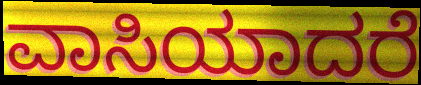
ವಾಸಿಯಾದರೆ